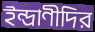
ইন্দ্রাণীদির